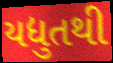
યદ્યુતથી